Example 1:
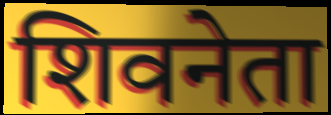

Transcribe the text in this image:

शिवनेता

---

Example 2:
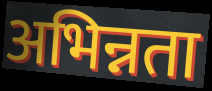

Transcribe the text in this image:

अभिन्नता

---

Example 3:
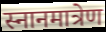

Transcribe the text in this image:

स्नानमात्रेण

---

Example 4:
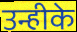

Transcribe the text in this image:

उन्हीके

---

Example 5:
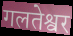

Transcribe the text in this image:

गलतेश्वर